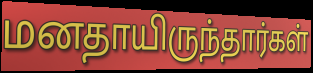
மனதாயிருந்தார்கள்